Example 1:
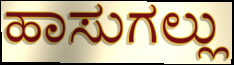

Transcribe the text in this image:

ಹಾಸುಗಲ್ಲು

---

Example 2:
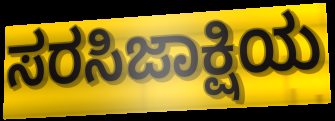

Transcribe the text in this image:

ಸರಸಿಜಾಕ್ಷಿಯ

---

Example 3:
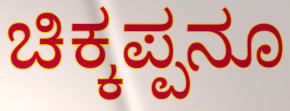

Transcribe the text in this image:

ಚಿಕ್ಕಪ್ಪನೂ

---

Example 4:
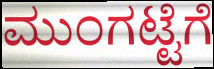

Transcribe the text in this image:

ಮುಂಗಟ್ಟೆಗೆ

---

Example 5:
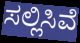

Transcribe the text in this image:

ಸಲ್ಲಿಸಿವೆ